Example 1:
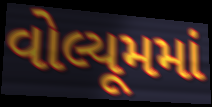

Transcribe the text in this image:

વોલ્યૂમમાં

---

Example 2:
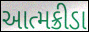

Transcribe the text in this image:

આત્મક્રીડા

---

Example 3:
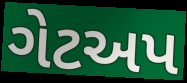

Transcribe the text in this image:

ગેટઅપ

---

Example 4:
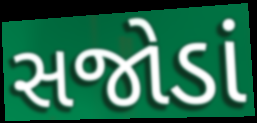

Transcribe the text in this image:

સજોડાં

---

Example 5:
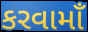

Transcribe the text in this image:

કરવામાઁ